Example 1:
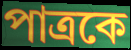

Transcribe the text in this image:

পাত্রকে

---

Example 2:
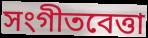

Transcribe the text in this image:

সংগীতবেত্তা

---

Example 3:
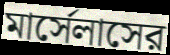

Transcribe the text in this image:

মার্সেলাসের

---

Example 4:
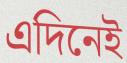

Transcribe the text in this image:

এদিনেই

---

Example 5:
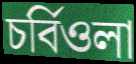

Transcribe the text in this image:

চর্বিওলা